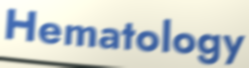
Hematology